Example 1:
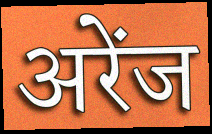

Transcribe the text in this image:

अरेंज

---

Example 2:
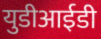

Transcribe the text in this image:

युडीआईडी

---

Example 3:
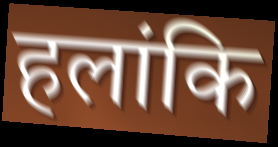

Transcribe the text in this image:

हलांकि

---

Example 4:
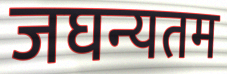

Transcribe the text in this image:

जघन्यतम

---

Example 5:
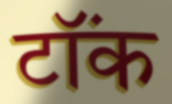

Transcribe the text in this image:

टॉंक